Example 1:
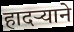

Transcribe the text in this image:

हादऱ्याने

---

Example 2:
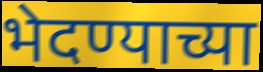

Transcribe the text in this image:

भेदण्याच्या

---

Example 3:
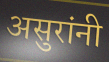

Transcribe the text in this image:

असुरांनी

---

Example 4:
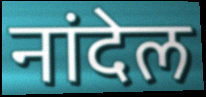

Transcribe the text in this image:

नांदेल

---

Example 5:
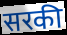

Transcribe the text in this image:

सरकी